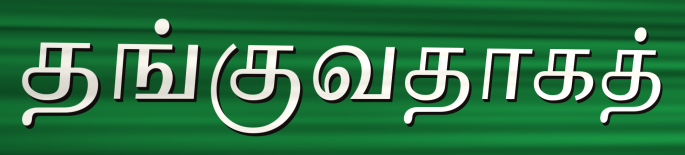
தங்குவதாகத்